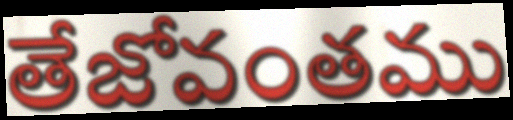
తేజోవంతము